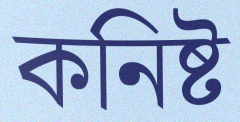
কনিষ্ট